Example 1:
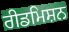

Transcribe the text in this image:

ਰੀਡਮਿਸ਼ਨ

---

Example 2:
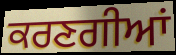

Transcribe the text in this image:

ਕਰਣਗੀਆਂ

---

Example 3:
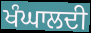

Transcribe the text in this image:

ਖੰਘਾਲਦੀ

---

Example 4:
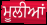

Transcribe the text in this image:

ਮੂਲੀਆਂ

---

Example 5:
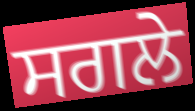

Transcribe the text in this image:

ਸਗਲੇ